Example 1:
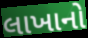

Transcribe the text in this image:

લાખાનો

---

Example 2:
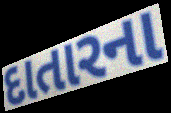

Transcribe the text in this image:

દાતારના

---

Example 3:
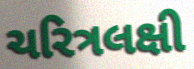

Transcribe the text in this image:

ચરિત્રલક્ષી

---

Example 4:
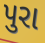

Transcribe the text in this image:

પુરા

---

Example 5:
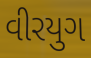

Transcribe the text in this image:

વીરયુગ